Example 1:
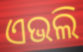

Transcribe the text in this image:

ଏଭଲି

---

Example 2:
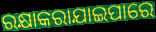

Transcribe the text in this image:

ରକ୍ଷାକରାଯାଇପାରେ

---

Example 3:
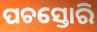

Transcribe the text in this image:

ପଚସ୍ତୋରି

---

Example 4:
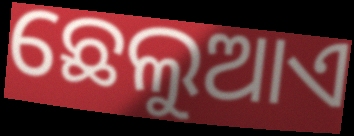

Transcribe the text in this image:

ଛେଲୁଆଏ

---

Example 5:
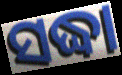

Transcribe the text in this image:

ସଦ୍ଧା